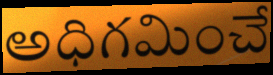
అధిగమించే